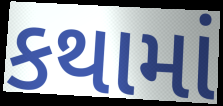
કથામાં